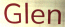
Glen